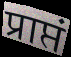
प्राप्तं